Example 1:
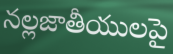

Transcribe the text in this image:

నల్లజాతీయులపై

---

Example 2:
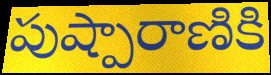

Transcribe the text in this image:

పుష్పారాణికి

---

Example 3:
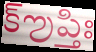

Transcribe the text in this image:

క్ఌప్తిః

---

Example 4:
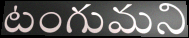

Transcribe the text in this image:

టంగుమని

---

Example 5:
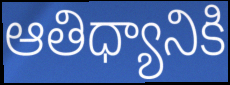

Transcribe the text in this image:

ఆతిధ్యానికి